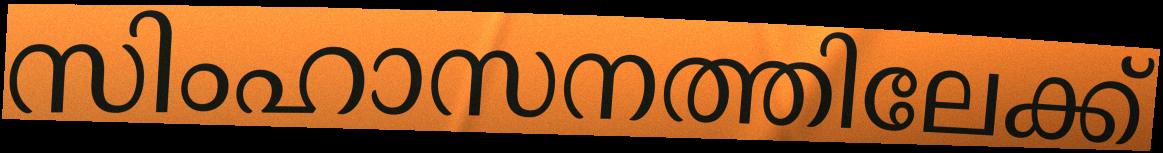
സിംഹാസനത്തിലേക്ക്